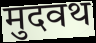
मुदवथ